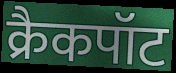
क्रैकपॉट